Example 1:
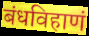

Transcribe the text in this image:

बंधविहाणं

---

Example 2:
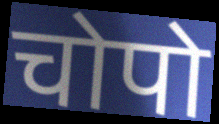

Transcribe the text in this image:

चोपो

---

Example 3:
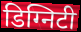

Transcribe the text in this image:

डिग्निटी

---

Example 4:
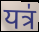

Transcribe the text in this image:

यत्र॑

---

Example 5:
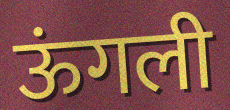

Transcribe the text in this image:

ऊंगली